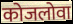
कोजलोवा